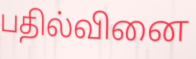
பதில்வினை